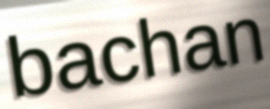
bachan